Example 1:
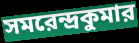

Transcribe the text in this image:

সমরেন্দ্রকুমার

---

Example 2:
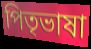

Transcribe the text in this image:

পিতৃভাষা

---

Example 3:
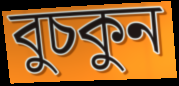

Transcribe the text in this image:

বুচকুন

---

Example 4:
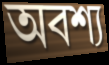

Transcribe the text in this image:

অবশ্য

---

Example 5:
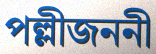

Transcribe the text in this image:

পল্লীজননী